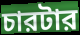
চারটার